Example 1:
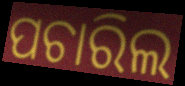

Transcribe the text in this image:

ପଚାରିଲ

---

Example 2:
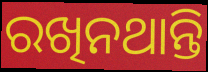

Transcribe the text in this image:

ରଖିନଥାନ୍ତି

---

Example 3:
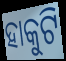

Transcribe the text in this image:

ହାକୁଟି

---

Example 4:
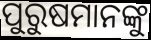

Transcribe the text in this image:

ପୁରୁଷମାନଙ୍କୁ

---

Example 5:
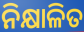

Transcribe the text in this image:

ନିକ୍ଷାଳିତ